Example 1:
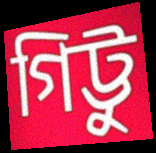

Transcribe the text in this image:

গিট্টু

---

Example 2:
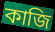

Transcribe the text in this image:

কাজি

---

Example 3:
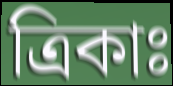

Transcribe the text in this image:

ত্রিকাঃ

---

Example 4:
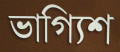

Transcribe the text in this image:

ভাগ্যিশ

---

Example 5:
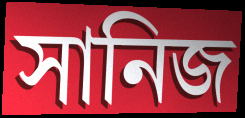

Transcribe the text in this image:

সানিজ